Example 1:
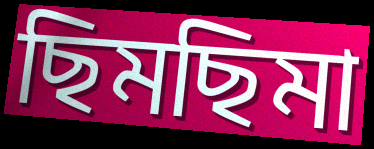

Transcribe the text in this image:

ছিমছিমা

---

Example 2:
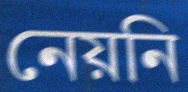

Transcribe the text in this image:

নেয়নি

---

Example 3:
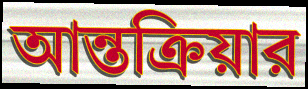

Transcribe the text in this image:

আন্তক্রিয়ার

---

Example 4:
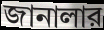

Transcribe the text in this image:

জানালার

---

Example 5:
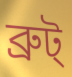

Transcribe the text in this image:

ব্রুট্